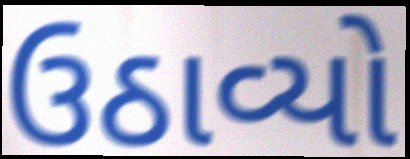
ઉઠાવ્યો